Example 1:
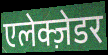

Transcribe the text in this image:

एलेक्ज़ेडर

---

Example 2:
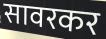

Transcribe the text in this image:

सावरकर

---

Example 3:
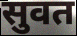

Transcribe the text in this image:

सुवत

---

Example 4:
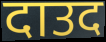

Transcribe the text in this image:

दाउद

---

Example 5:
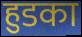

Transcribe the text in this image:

हुडका